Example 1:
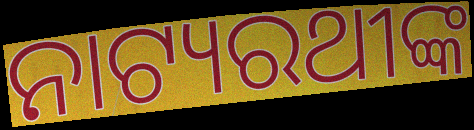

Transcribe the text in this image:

ନାଟ୍ୟରଥୀଙ୍କ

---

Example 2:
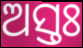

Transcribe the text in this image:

ଅସ୍ତଃ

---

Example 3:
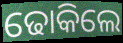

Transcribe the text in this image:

ଢୋକିଲେ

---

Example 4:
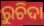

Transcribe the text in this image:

ରୁଚିଦା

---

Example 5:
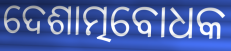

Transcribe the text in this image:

ଦେଶାତ୍ମବୋଧକ